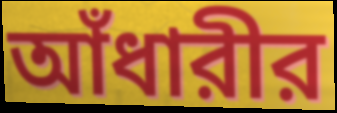
আঁধারীর